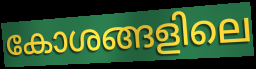
കോശങ്ങളിലെ